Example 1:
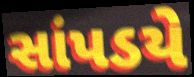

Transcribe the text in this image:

સાંપડયે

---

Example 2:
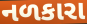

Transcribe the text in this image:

નળકારા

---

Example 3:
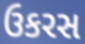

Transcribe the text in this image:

ઉકરસ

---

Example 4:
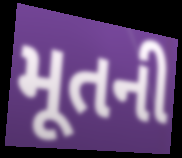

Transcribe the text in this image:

મૂતની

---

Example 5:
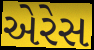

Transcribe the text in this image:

એરેસ